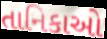
તાનિકાઓ